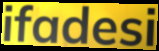
ifadesi